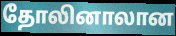
தோலினாலான